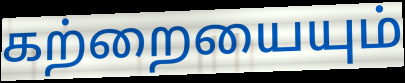
கற்றையையும்